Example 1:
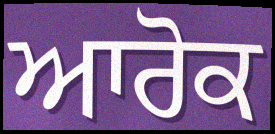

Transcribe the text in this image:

ਆਰੋਕ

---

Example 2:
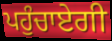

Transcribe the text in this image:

ਪਹੁੰਚਾਏਗੀ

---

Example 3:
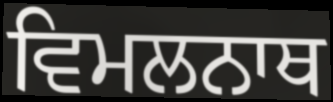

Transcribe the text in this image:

ਵਿਮਲਨਾਥ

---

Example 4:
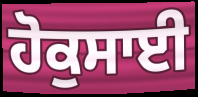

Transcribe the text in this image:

ਹੋਕੁਸਾਈ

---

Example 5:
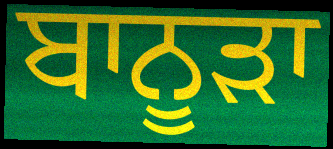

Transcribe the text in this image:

ਬਾਨੂੜਾ